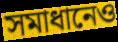
সমাধানেও